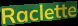
Raclette